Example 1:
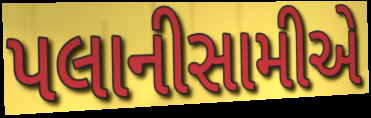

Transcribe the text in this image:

પલાનીસામીએ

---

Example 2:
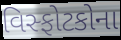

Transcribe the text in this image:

વિસ્ફોટકોના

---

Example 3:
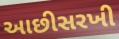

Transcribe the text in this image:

આછીસરખી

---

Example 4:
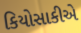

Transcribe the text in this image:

કિયોસાકીએ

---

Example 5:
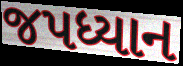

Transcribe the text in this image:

જપધ્યાન